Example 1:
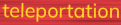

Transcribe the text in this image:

teleportation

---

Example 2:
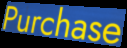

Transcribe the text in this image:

Purchase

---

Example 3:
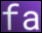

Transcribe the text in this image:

fa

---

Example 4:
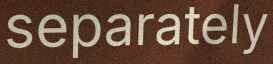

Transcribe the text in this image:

separately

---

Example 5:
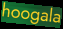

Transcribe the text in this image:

hoogala